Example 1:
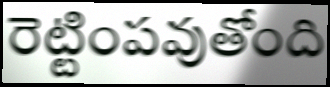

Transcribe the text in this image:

రెట్టింపవుతోంది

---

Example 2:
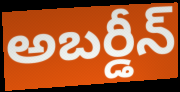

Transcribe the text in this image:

అబర్డీన్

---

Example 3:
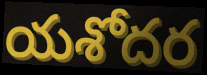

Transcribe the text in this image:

యశోదర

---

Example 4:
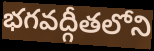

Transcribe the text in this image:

భగవద్గీతలోని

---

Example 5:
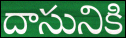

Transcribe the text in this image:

దాసునికి